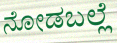
ನೋಡಬಲ್ಲೆ